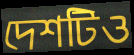
দেশটিও